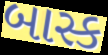
બાસ્ક